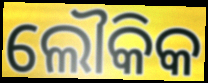
ଲୌକିକ